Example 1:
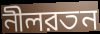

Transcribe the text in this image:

নীলরতন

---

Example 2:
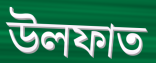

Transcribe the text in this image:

উলফাত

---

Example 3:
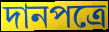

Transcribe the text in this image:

দানপত্রে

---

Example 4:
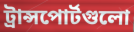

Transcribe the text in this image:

ট্রান্সপোর্টগুলো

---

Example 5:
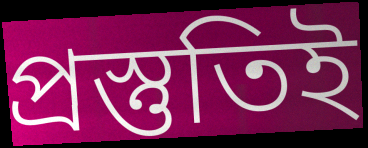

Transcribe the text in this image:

প্রস্তুতিই